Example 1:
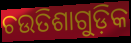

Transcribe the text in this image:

ଚଉତିଶାଗୁଡ଼ିକ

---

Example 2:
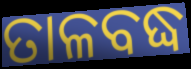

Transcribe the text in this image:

ତାଳବଦ୍ଧ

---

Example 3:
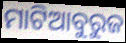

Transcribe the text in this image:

ମାଟିଆବୁରୁଜ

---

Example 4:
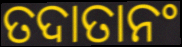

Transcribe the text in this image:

ତଦାତାନଂ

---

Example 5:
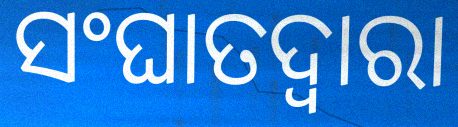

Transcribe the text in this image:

ସଂଘାତଦ୍ୱାରା